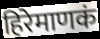
हिरेमाणकं